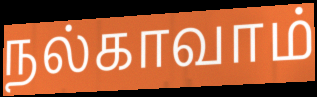
நல்காவாம்